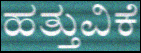
ಹತ್ತುವಿಕೆ